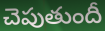
చెపుతుందీ